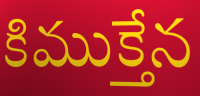
కిముక్తేన